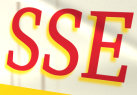
SSE